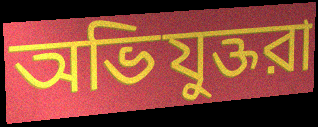
অভিযুক্তরা